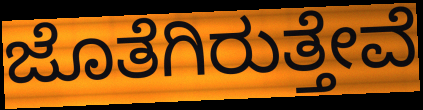
ಜೊತೆಗಿರುತ್ತೇವೆ